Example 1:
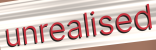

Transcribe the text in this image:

unrealised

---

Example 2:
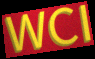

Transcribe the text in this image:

WCI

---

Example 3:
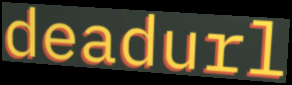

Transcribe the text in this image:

deadurl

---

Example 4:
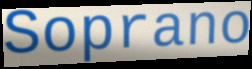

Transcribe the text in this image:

Soprano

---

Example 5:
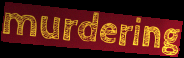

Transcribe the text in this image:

murdering